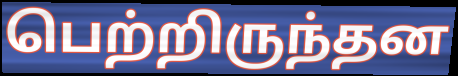
பெற்றிருந்தன